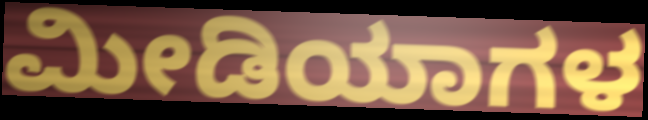
ಮೀಡಿಯಾಗಳ